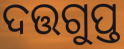
ଦତ୍ତଗୁପ୍ତ